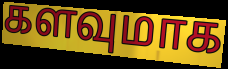
களவுமாக